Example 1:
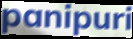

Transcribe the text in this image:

panipuri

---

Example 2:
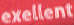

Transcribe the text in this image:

exellent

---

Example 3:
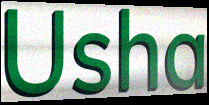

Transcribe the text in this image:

Usha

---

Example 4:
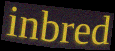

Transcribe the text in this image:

inbred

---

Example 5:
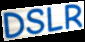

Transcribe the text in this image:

DSLR